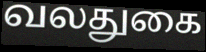
வலதுகை